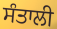
ਸੰਤਾਲੀ